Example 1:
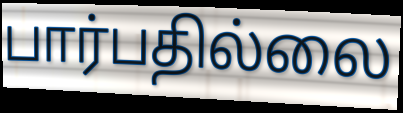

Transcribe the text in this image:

பார்பதில்லை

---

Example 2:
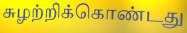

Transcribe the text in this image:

சுழற்றிக்கொண்டது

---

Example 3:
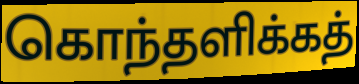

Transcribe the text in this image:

கொந்தளிக்கத்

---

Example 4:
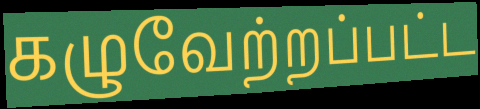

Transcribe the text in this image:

கழுவேற்றப்பட்ட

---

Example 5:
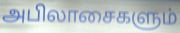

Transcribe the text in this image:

அபிலாசைகளும்